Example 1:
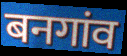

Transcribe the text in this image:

बनगांव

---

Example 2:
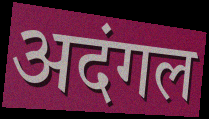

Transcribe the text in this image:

अदंगल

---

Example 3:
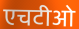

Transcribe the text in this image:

एचटीओ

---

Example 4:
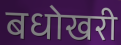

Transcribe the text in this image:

बधोखरी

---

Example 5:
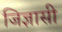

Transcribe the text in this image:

जिज्ञासी